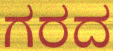
ಗರದ